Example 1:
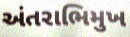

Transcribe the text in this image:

અંતરાભિમુખ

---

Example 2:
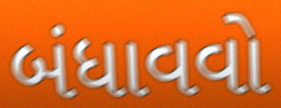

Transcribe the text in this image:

બંધાવવો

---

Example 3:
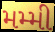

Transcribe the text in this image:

મમ્મી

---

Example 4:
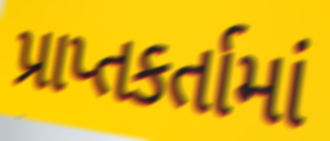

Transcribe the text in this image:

પ્રાપ્તકર્તામાં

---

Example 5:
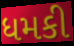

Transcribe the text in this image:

ધમકી